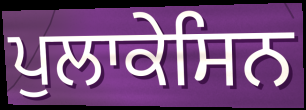
ਪੁਲਾਕੇਸਿਨ